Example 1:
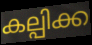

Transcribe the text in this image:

കല്പിക്ക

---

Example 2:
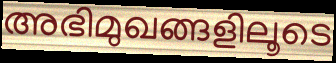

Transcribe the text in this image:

അഭിമുഖങ്ങളിലൂടെ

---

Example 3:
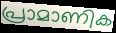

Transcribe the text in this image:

പ്രാമാണിക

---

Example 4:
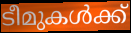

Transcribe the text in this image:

ടീമുകൾക്ക്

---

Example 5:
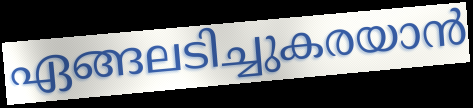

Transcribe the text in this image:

ഏങ്ങലടിച്ചുകരയാൻ